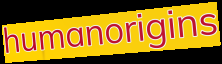
humanorigins